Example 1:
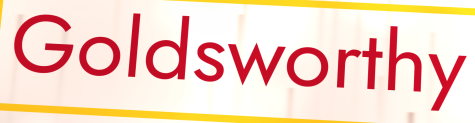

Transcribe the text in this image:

Goldsworthy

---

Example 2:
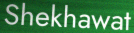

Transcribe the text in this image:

Shekhawat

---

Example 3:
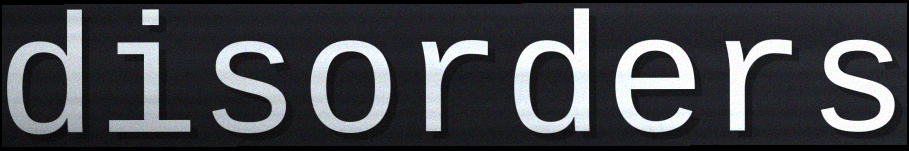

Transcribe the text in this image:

disorders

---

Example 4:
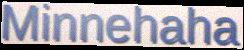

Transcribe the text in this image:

Minnehaha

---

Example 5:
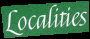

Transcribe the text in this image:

Localities